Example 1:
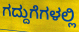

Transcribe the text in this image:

ಗದ್ದುಗೆಗಳಲ್ಲಿ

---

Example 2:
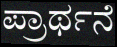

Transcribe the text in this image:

ಪ್ರಾರ್ಥನೆ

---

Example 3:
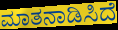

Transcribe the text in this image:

ಮಾತನಾಡಿಸಿದೆ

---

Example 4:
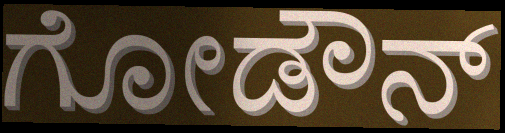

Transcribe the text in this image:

ಗೋಡೌನ್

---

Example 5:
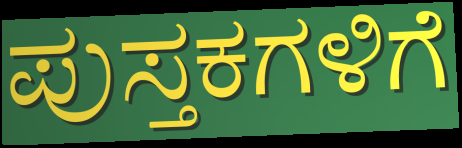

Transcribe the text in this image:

ಪುಸ್ತಕಗಳಿಗೆ